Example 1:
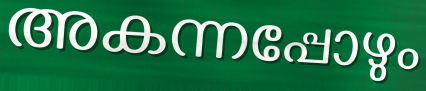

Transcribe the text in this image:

അകന്നപ്പോഴും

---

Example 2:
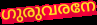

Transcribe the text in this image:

ഗുരുവരനേ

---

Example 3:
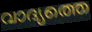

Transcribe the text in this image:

വാദ്യത്തെ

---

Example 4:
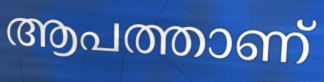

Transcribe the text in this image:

ആപത്താണ്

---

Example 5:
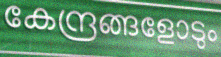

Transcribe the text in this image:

കേന്ദ്രങ്ങളോടും